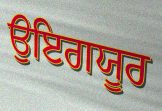
ਉਇਗਯੂਰ